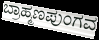
ಬ್ರಾಹ್ಮಣಪುಂಗವ